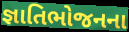
જ્ઞાતિભોજનના